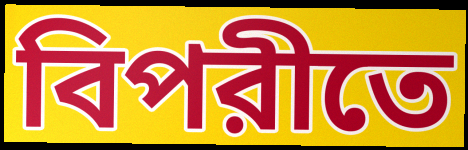
বিপরীতে